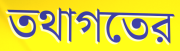
তথাগতের